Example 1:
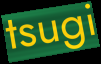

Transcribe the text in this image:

tsugi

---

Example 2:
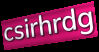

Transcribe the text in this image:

csirhrdg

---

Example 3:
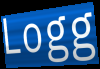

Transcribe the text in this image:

Logg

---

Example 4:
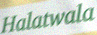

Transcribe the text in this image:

Halatwala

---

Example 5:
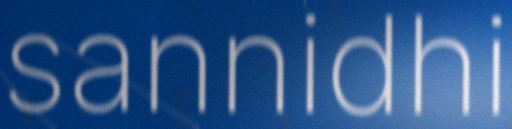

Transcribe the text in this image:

sannidhi